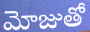
మోజుతో